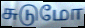
சுடுமோ